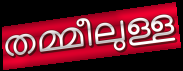
തമ്മീലുള്ള